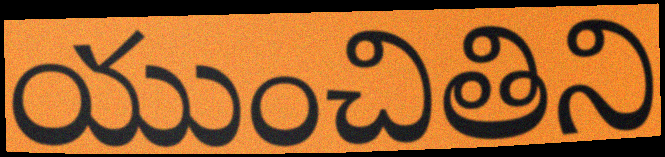
యుంచితిని